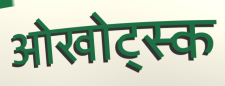
ओखोट्स्क